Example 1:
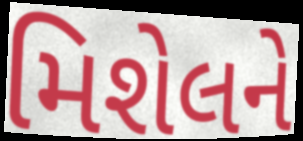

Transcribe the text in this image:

મિશેલને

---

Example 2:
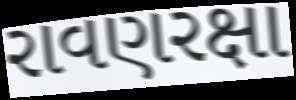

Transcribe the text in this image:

રાવણરક્ષા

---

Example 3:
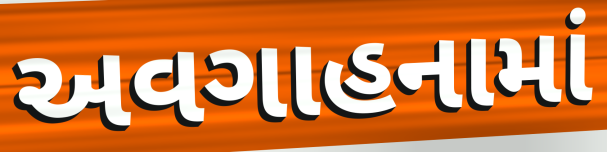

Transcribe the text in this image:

અવગાહનામાં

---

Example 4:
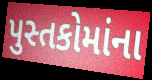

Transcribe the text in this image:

પુસ્તકોમાંના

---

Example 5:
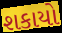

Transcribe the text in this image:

શકાયો